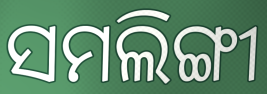
ସମଲିଙ୍ଗୀ